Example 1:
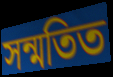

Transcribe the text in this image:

সন্মতিত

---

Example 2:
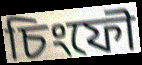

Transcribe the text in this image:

চিংফৌ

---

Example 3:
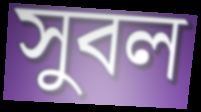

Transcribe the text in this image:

সুবল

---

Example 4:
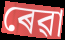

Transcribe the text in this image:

ৰেৱা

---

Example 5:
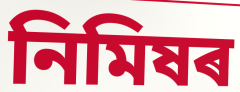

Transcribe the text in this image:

নিমিষৰ